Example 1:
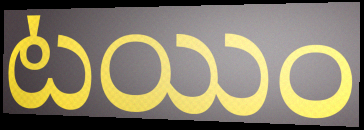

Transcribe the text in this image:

టయిం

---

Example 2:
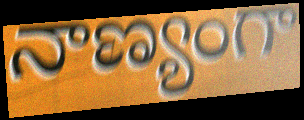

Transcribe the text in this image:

నాణ్యంగా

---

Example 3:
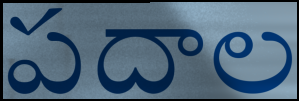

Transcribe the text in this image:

పదాల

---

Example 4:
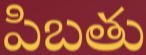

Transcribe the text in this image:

పిబతు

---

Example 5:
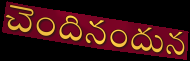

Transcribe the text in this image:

చెందినందున